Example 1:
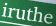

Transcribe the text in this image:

iruthe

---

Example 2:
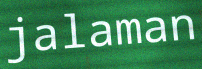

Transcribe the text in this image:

jalaman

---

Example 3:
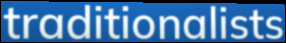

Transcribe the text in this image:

traditionalists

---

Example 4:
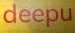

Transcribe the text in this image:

deepu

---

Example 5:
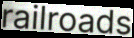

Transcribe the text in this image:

railroads